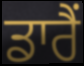
ਡਾਰੈਂ